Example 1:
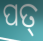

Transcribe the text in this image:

ପତ୍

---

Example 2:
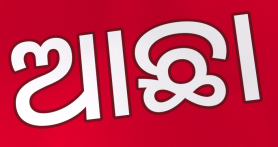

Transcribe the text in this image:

ଆଛା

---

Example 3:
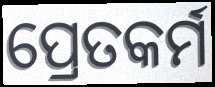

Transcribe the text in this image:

ପ୍ରେତକର୍ମ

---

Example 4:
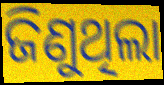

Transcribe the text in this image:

ଜିଣୁଥିଲା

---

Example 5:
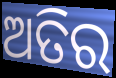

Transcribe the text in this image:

ଅତିର